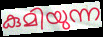
കുമിയുന്ന